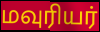
மவுரியர்